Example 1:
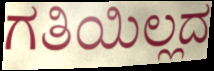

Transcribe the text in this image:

ಗತಿಯಿಲ್ಲದ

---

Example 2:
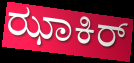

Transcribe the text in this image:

ಝಾಕಿರ್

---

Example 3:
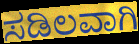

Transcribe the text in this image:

ಸಡಿಲವಾಗಿ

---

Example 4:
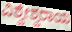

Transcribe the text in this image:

ವಿಶ್ವೇಶ್ವರಾಯ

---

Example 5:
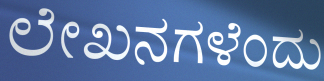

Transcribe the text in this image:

ಲೇಖನಗಳೆಂದು